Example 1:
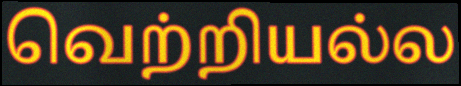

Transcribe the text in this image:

வெற்றியல்ல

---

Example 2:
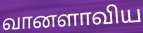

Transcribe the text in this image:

வானளாவிய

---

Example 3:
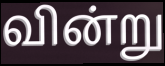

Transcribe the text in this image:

வின்று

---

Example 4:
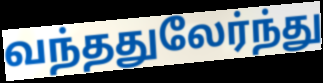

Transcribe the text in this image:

வந்ததுலேர்ந்து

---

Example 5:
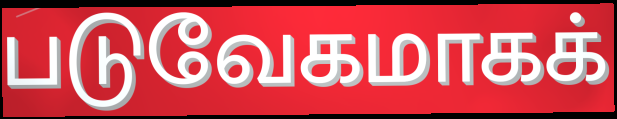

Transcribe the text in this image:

படுவேகமாகக்